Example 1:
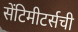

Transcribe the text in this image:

सेंटिमीटर्सची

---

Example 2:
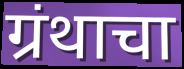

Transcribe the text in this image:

ग्रंथाचा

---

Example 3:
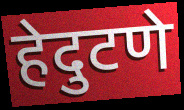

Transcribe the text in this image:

हेदुटणे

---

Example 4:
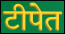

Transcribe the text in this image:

टीपेत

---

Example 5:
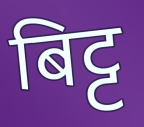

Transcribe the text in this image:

बिट्ट